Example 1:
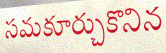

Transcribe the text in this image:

సమకూర్చుకొనిన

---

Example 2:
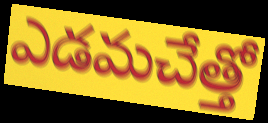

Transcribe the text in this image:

ఎడమచేత్తో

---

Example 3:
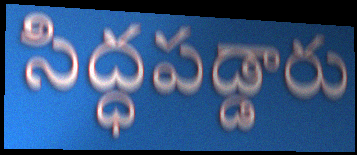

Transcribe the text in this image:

సిద్ధపడ్డారు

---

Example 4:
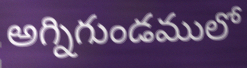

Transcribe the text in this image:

అగ్నిగుండములో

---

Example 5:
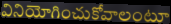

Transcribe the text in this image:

వినియోగించుకోవాలంటూ